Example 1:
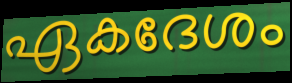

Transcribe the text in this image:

ഏകദേശം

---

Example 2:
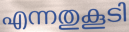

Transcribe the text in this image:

എന്നതുകൂടി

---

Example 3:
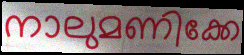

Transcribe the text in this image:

നാലുമണിക്കേ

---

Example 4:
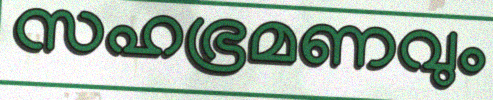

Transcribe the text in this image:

സഹഭ്രമണവും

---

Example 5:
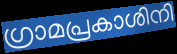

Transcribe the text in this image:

ഗ്രാമപ്രകാശിനി